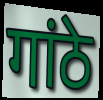
गांठे